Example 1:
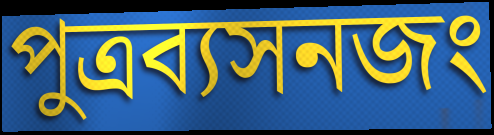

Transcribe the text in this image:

পুত্রব্যসনজং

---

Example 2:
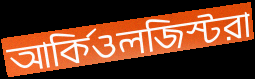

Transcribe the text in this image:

আর্কিওলজিস্টরা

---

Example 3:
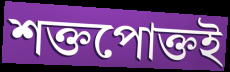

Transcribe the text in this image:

শক্তপোক্তই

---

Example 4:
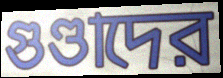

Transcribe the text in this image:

গুণ্ডাদের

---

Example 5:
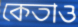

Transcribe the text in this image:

কেতাও